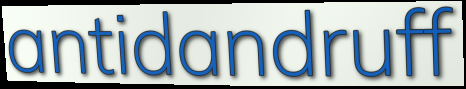
antidandruff